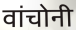
वांचोनी